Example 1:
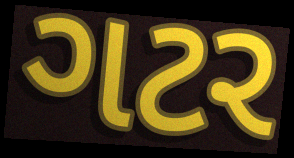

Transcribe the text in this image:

ગટર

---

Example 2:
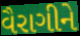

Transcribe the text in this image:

વૈરાગીને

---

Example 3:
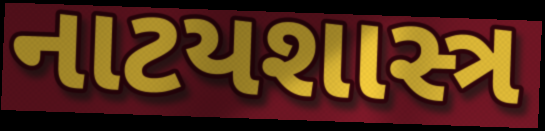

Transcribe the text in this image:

નાટયશાસ્ત્ર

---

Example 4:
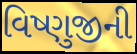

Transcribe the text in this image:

વિષ્ણુજીની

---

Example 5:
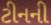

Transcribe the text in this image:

ટીનની